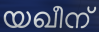
യഖീന്